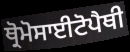
ਥ੍ਰੋਮੋਸਾਈਟੋਪੈਥੀ